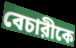
বেচারীকে